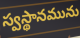
స్వస్థానమును